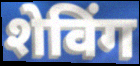
शेविंग